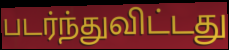
படர்ந்துவிட்டது